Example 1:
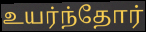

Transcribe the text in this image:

உயர்ந்தோர்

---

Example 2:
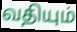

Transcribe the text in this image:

வதியும்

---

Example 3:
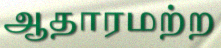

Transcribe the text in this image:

ஆதாரமற்ற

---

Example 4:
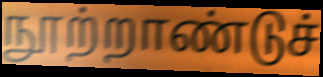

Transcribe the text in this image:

நூற்றாண்டுச்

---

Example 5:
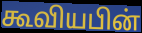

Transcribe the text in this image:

கூவியபின்